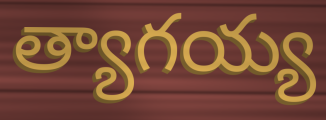
త్యాగయ్య